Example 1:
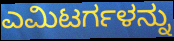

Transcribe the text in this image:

ಎಮಿಟರ್ಗಳನ್ನು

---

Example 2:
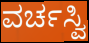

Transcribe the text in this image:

ವರ್ಚಸ್ವಿ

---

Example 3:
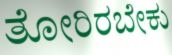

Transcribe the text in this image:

ತೋರಿರಬೇಕು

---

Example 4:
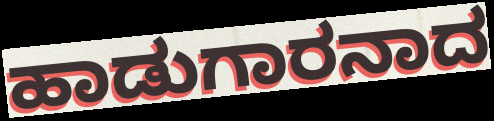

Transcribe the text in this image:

ಹಾಡುಗಾರನಾದ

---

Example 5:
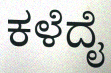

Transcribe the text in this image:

ಕಳೆದೈ